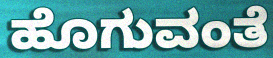
ಹೊಗುವಂತೆ